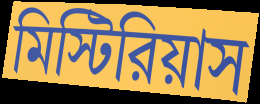
মিস্টিরিয়াস